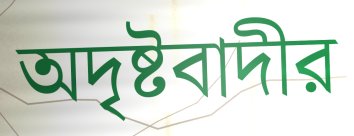
অদৃষ্টবাদীর